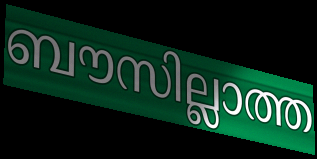
ബൗസില്ലാത്ത